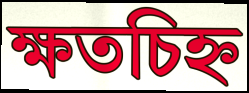
ক্ষতচিহ্ন